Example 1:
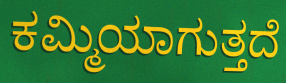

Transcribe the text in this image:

ಕಮ್ಮಿಯಾಗುತ್ತದೆ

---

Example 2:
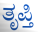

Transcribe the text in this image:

ತೃಪ್ತಿ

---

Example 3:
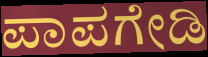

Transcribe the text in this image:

ಪಾಪಗೇಡಿ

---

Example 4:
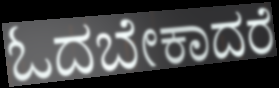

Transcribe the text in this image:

ಓದಬೇಕಾದರೆ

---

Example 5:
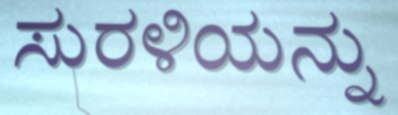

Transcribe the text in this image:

ಸುರಳಿಯನ್ನು